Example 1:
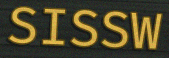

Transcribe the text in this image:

SISSW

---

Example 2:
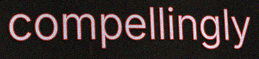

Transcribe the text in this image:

compellingly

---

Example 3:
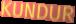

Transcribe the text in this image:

KUNDUR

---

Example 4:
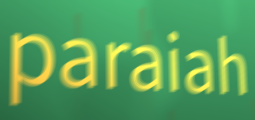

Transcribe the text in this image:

paraiah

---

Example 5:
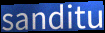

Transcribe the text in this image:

sanditu